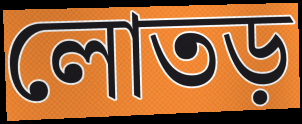
লোতড়